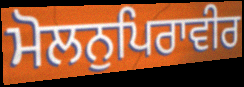
ਮੋਲਨੁਪਿਰਾਵੀਰ